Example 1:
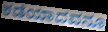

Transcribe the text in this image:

ಕಡೆಯಾದವನೂ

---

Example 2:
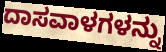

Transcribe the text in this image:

ದಾಸವಾಳಗಳನ್ನು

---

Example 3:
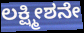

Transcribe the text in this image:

ಲಕ್ಷ್ಮೀಶನೇ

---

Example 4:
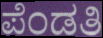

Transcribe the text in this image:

ಪೆಂಡತಿ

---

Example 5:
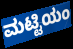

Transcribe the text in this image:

ಮಟ್ಟಿಯಂ